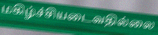
மகிழ்ச்சியடைவதில்லை